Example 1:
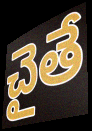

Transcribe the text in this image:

చైతే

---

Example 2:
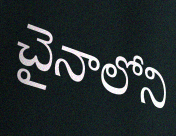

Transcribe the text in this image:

చైనాలోని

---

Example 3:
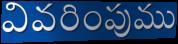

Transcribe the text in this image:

వివరింపుము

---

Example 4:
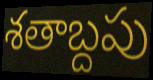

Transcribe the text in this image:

శతాబ్దపు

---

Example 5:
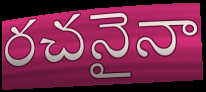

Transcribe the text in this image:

రచనైనా